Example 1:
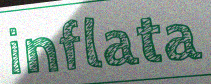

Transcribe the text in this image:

inflata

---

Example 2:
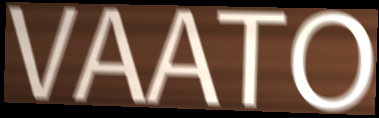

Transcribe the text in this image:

VAATO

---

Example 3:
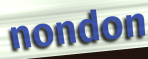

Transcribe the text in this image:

nondon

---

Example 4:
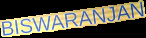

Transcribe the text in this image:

BISWARANJAN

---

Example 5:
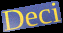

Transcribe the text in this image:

Deci